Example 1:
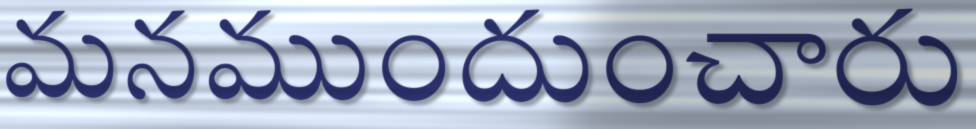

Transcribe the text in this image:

మనముందుంచారు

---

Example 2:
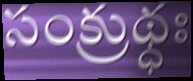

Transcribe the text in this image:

సంక్రుథ్ధః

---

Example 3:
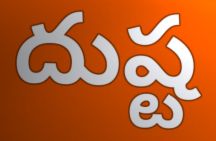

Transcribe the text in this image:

దుష్ట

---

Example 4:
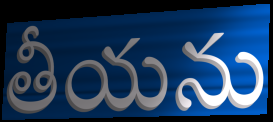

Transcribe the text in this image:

తీయను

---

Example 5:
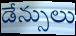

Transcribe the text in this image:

డేన్సులు